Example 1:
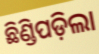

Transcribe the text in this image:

ଛିଣ୍ଡିପଡ଼ିଲା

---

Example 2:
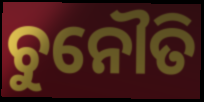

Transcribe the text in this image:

ଚୁନୌତି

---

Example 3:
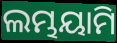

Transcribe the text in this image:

ଲମ୍ଭୟାମି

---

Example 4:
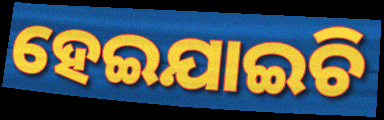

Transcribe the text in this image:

ହେଇଯାଇଚି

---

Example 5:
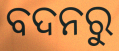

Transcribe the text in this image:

ବଦନରୁ